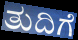
ತುದಿಗೆ